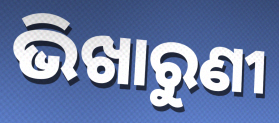
ଭିଖାରୁଣୀ